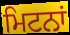
ਮਿਟਨਾਂ